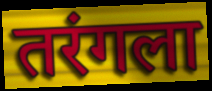
तरंगला